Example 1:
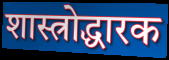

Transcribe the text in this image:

शास्त्रोद्धारक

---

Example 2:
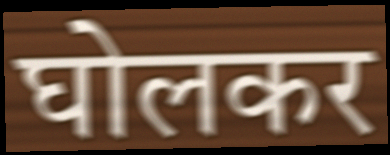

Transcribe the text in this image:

घोलकर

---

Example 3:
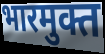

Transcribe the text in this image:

भारमुक्त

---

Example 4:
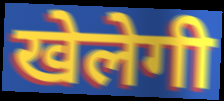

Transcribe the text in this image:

खेलेगी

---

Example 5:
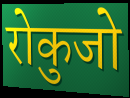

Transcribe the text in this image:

रोकुजो